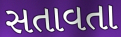
સતાવતા